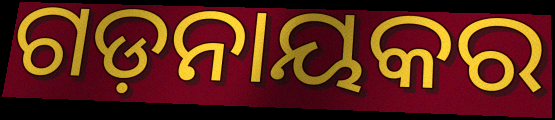
ଗଡ଼ନାୟକର